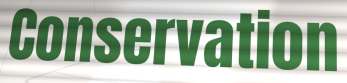
Conservation